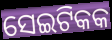
ସେଇଟିକକ